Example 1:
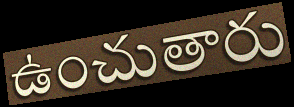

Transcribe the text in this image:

ఉంచుతారు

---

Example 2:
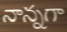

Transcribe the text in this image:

నాన్నగా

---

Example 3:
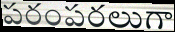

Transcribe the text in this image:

పరంపరలుగా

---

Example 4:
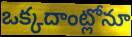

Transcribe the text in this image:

ఒక్కదాంట్లోనూ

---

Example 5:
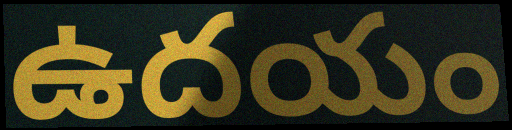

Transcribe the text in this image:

ఉదయం